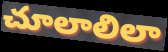
చూలాలిలా